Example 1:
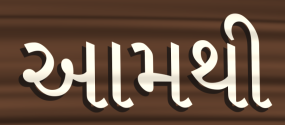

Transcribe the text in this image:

આમથી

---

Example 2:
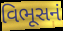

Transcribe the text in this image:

વિભૂસનં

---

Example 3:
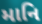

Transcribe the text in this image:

માનિ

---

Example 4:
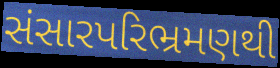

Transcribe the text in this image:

સંસારપરિભ્રમણથી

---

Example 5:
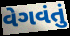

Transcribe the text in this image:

વેગવંતું